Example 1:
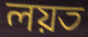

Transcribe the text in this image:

লয়ত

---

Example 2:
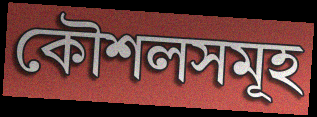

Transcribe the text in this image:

কৌশলসমূহ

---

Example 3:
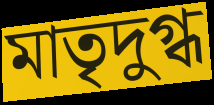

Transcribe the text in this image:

মাতৃদুগ্ধ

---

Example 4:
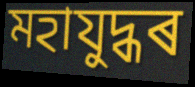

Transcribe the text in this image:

মহাযুদ্ধৰ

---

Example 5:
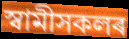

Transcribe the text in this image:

স্বামীসকলৰ